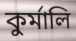
কুৰ্মালি